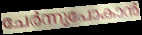
ചേർന്നുപോകാൻ